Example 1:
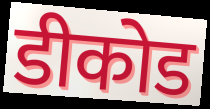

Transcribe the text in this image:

डीकोड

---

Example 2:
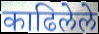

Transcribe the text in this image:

काढिलेले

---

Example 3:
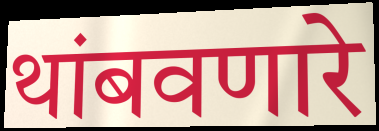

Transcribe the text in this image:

थांबवणारे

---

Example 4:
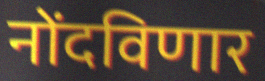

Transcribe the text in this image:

नोंदविणार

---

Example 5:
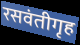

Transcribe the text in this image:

रसवंतीगृह